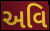
અવિ